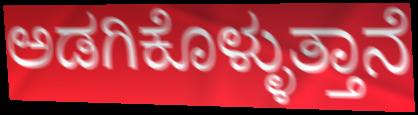
ಅಡಗಿಕೊಳ್ಳುತ್ತಾನೆ